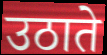
उठाते